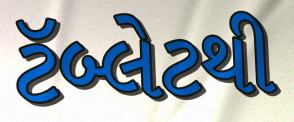
ટૅબ્લેટથી